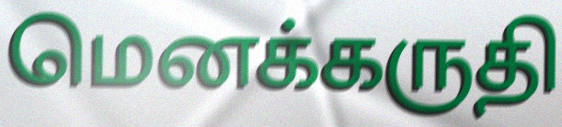
மெனக்கருதி